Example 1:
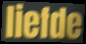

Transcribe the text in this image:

liefde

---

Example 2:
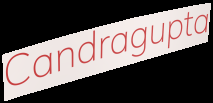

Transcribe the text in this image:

Candragupta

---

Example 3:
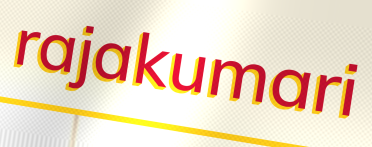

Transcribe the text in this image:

rajakumari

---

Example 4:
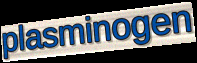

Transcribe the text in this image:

plasminogen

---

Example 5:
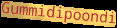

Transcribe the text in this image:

Gummidipoondi